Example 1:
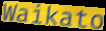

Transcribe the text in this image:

Waikato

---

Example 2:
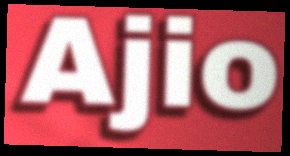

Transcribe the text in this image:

Ajio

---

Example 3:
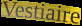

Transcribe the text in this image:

Vestiaire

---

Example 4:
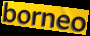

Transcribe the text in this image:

borneo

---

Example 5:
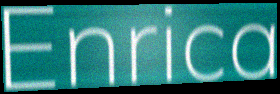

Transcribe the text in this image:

Enrica